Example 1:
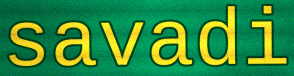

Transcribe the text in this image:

savadi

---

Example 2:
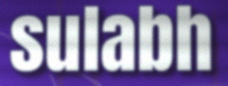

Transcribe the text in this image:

sulabh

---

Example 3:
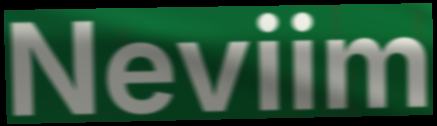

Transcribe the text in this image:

Neviim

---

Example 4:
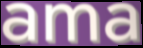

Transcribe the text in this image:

ama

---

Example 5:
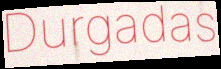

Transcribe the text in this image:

Durgadas